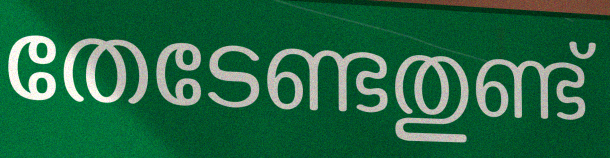
തേടേണ്ടതുണ്ട്